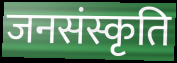
जनसंस्कृति